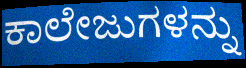
ಕಾಲೇಜುಗಳನ್ನು